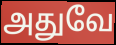
அதுவே